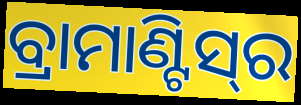
ବ୍ରାମାଣ୍ଟିସ୍‌ର